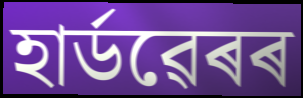
হাৰ্ডৱেৰৰ